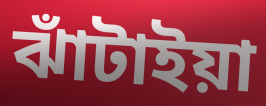
ঝাঁটাইয়া